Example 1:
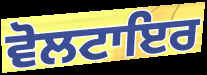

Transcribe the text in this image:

ਵੋਲਟਾਇਰ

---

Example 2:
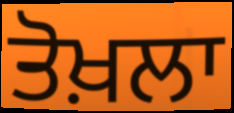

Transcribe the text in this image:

ਤੋਖ਼ਲਾ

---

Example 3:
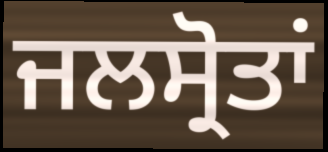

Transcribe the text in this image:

ਜਲਸ੍ਰੋਤਾਂ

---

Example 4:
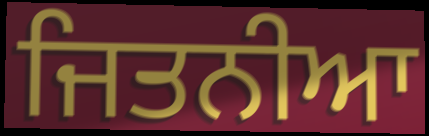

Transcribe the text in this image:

ਜਿਤਨੀਆ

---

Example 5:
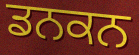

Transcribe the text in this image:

ਡਨਕਨ